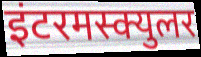
इंटरमस्क्युलर